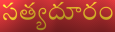
సత్యదూరం